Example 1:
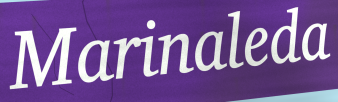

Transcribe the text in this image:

Marinaleda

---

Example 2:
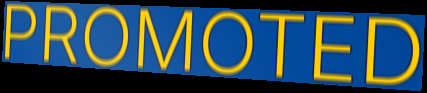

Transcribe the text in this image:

PROMOTED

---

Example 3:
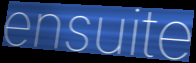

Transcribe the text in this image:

ensuite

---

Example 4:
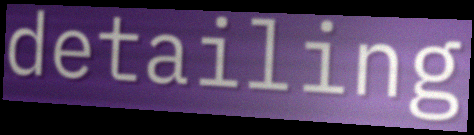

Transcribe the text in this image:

detailing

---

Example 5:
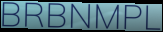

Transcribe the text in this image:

BRBNMPL